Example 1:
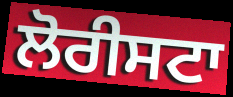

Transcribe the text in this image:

ਲੋਰੀਸਟਾ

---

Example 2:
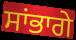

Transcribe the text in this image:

ਸਾਂਭਾਗੇ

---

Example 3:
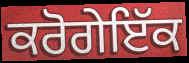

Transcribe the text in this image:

ਕਰੋਗੇਇੱਕ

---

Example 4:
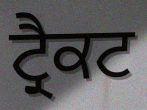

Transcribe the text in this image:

ਟ੍ਰੈਕਟ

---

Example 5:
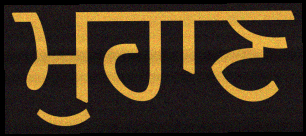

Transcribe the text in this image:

ਮੁਹਾਣ